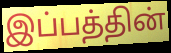
இப்பத்தின்